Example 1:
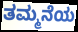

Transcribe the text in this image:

ತಮ್ಮನೆಯ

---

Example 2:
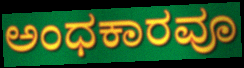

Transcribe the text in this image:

ಅಂಧಕಾರವೂ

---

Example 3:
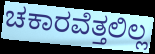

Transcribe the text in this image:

ಚಕಾರವೆತ್ತಲಿಲ್ಲ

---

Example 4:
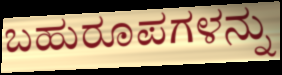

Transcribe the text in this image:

ಬಹುರೂಪಗಳನ್ನು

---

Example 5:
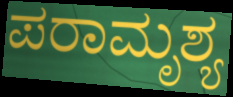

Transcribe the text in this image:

ಪರಾಮೃಶ್ಯ